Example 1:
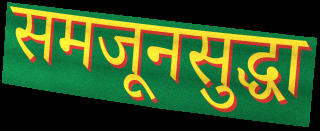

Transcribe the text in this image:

समजूनसुद्धा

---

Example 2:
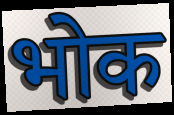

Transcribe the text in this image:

भोक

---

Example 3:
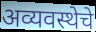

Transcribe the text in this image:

अव्यवस्थेचे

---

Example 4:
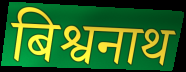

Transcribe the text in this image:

बिश्वनाथ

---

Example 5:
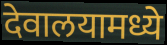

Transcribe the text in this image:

देवालयामध्ये